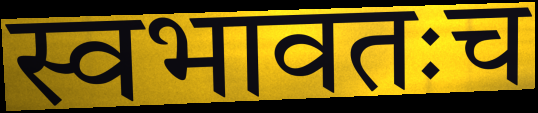
स्वभावतःच